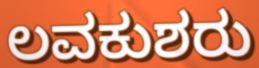
ಲವಕುಶರು